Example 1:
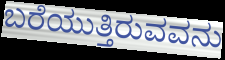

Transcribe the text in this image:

ಬರೆಯುತ್ತಿರುವವನು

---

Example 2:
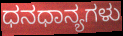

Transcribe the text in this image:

ಧನಧಾನ್ಯಗಳು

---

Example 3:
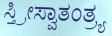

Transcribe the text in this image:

ಸ್ತ್ರೀಸ್ವಾತಂತ್ರ್ಯ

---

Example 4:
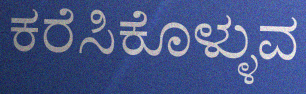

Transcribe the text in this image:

ಕರೆಸಿಕೊಳ್ಳುವ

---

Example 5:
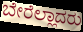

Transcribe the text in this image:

ಬೇರೆಲ್ಲಾದರು